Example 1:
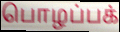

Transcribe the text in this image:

பொழப்பக்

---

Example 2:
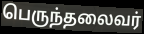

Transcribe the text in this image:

பெருந்தலைவர்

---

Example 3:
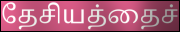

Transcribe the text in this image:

தேசியத்தைச்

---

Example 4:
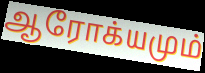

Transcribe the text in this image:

ஆரோக்யமும்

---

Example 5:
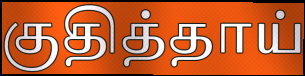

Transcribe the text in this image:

குதித்தாய்